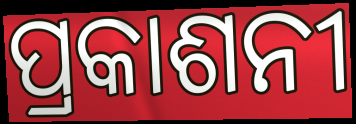
ପ୍ରକାଶନୀ